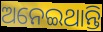
ଅନେଇଥାନ୍ତି